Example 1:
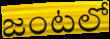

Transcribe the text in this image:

జంటలో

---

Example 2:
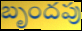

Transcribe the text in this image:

బృందపు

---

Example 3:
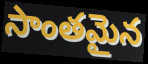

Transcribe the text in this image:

సాంతమైన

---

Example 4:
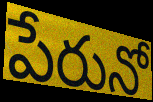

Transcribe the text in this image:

పేరునో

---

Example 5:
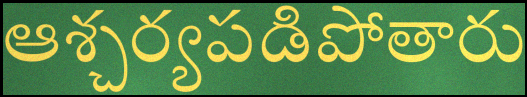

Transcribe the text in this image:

ఆశ్చర్యపడిపోతారు